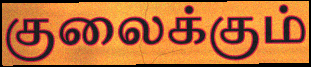
குலைக்கும்